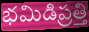
భమిడిప్రత్తి